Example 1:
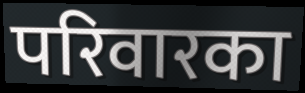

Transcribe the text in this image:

परिवारका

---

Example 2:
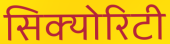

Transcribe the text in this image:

सिक्‍योरिटी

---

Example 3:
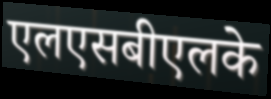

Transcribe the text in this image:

एलएसबीएलके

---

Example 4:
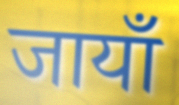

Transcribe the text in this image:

जायाँ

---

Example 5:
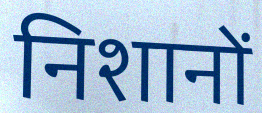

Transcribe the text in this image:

निशानों